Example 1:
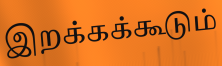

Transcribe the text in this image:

இறக்கக்கூடும்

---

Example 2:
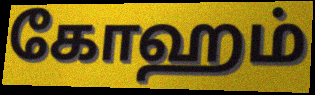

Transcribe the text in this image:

கோஹம்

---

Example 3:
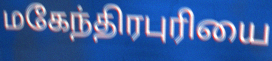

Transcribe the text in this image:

மகேந்திரபுரியை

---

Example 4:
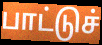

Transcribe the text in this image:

பாட்டுச்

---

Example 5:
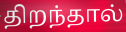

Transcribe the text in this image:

திறந்தால்